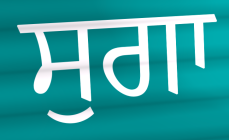
ਸੁਗਾ